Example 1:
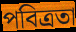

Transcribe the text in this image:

পবিত্ৰতা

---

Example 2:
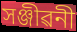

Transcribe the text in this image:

সঞ্জীৱনী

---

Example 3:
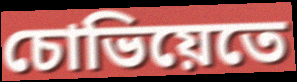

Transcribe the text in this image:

চোভিয়েতে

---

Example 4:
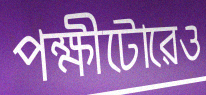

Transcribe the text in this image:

পক্ষীটোৱেও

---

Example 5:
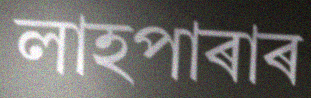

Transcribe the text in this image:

লাহপাৰাৰ